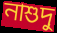
নাশুদু